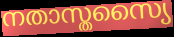
നതാസ്തസ്യൈ